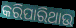
କରିପାରିଥାଉ